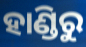
ହାଣ୍ଡିରୁ